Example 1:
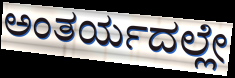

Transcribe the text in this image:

ಅಂತರ್ಯದಲ್ಲೇ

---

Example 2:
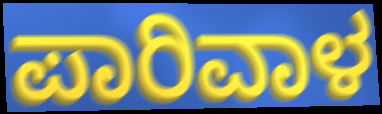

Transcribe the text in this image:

ಪಾರಿವಾಳ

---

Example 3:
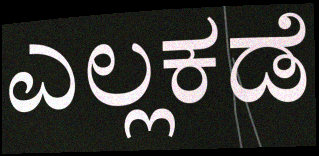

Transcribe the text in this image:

ಎಲ್ಲಕಡೆ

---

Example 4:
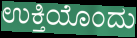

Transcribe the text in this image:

ಉಕ್ತಿಯೊಂದು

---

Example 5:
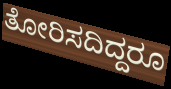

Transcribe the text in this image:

ತೋರಿಸದಿದ್ದರೂ